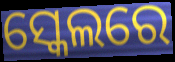
ସ୍କେଲରେ